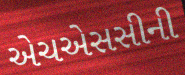
એચએસસીની